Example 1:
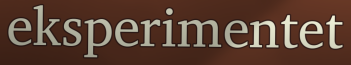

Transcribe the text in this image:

eksperimentet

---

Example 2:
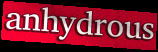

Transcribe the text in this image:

anhydrous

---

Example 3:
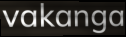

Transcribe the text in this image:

vakanga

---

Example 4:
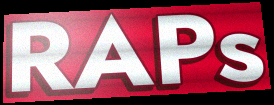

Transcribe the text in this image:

RAPs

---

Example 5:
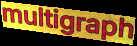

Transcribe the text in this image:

multigraph